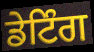
ਡੇਟਿੰਗ